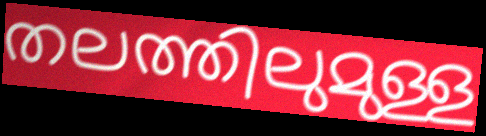
തലത്തിലുമുള്ള